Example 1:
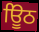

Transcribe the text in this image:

ਊਿਠ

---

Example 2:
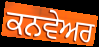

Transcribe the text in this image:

ਕਨਵੇਅਰ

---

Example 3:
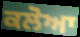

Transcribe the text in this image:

ਕਲੋਆ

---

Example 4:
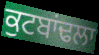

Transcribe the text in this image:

ਕੁਟਬਾਂਢਲਾ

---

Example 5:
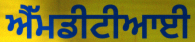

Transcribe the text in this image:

ਐੱਮਡੀਟੀਆਈ